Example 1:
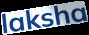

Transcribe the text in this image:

laksha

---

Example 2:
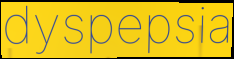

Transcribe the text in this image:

dyspepsia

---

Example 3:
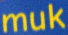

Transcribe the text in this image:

muk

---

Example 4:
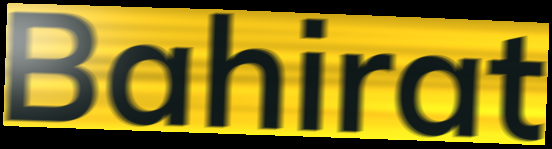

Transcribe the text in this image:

Bahirat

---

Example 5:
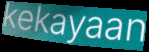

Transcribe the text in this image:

kekayaan